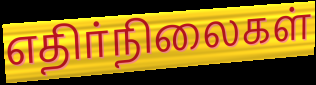
எதிர்நிலைகள்